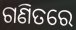
ଗଣିତରେ